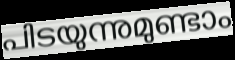
പിടയുന്നുമുണ്ടാം